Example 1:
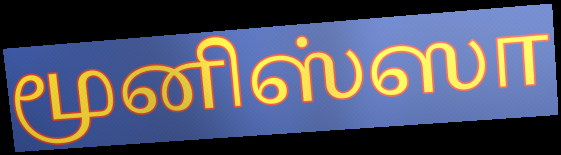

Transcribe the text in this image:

மூனிஸ்ஸா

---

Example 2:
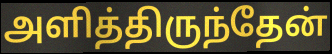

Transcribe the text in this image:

அளித்திருந்தேன்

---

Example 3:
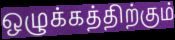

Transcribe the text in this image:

ஒழுக்கத்திற்கும்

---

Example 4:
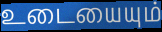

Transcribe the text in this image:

உடையையும்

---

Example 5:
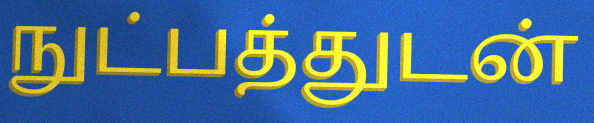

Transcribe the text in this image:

நுட்பத்துடன்